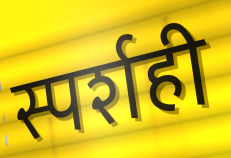
स्पर्शही